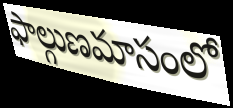
ఫాల్గుణమాసంలో